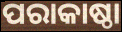
ପରାକାଷ୍ଠା